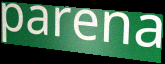
parena